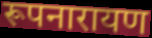
रूपनारायण